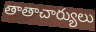
తాతాచార్యులు